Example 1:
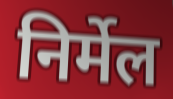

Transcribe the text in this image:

निर्मेल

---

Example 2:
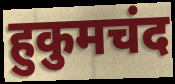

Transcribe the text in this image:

हुकुमचंद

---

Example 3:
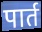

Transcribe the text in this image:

पार्त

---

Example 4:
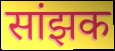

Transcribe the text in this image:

सांझक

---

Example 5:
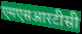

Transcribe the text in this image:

एमएसआरटीसी